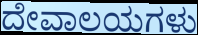
ದೇವಾಲಯಗಳು